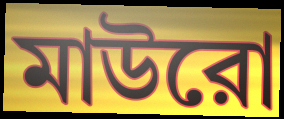
মাউরো